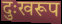
दुःखरूप